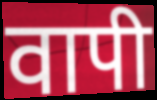
वापी